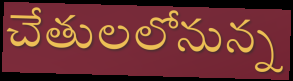
చేతులలోనున్న